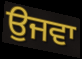
ਉਜਵਾ